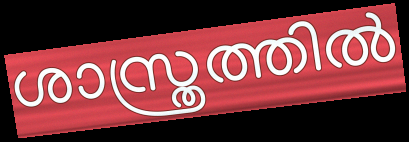
ശാസ്ത്രത്തിൽ